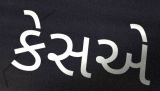
કેસએ